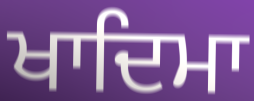
ਖਾਦਿਮਾ